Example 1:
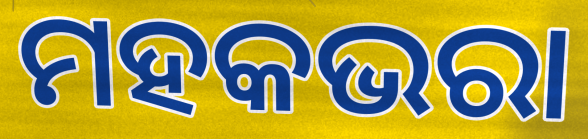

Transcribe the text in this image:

ମହକଭରା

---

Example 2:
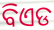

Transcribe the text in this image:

ବିଏଡ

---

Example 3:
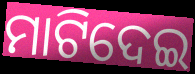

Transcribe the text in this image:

ମାଟିଦେଇ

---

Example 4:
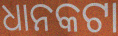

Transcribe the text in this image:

ଧାନକଟା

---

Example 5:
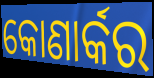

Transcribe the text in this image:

କୋଣାର୍କର